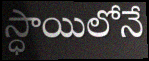
స్ధాయిలోనే